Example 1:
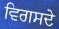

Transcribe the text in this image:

ਵਿਗਸਦੇ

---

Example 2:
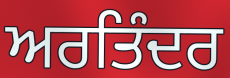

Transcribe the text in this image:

ਅਰਤਿੰਦਰ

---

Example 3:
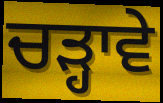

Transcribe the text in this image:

ਚੜ੍ਹਾਵੇ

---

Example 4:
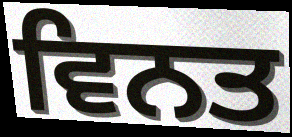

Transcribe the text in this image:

ਵਿਨਤ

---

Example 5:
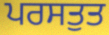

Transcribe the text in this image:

ਪਰਸਤੁਤ